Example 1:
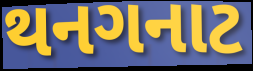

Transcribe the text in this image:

થનગનાટ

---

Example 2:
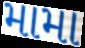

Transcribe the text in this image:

મામા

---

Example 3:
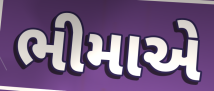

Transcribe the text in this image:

ભીમાએ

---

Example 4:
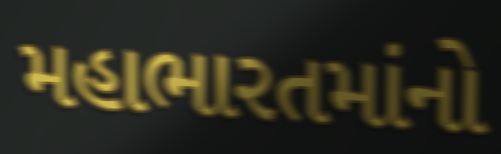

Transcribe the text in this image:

મહાભારતમાંનો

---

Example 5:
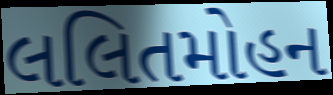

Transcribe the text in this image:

લલિતમોહન